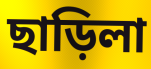
ছাড়িলা